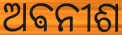
ଅଵନୀଶ